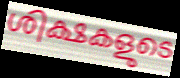
ശിക്ഷകളുടെ